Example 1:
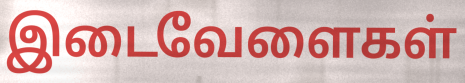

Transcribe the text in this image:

இடைவேளைகள்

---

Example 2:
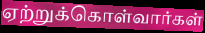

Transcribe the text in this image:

ஏற்றுக்கொள்வார்கள்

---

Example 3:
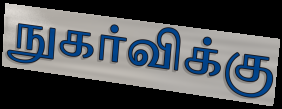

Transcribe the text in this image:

நுகர்விக்கு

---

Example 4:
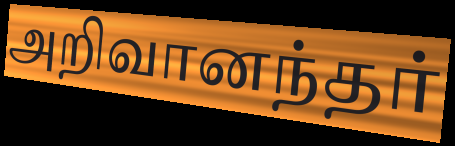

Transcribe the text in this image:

அறிவானந்தர்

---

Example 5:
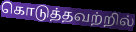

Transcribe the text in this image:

கொடுத்தவற்றில்